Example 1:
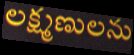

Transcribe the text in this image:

లక్ష్మణులను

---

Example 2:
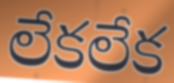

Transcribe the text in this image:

లేకలేక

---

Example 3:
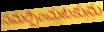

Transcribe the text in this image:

సమర్పించుటకును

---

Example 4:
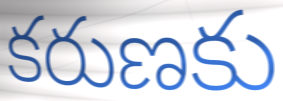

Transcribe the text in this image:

కరుణకు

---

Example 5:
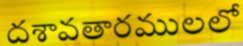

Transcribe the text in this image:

దశావతారములలో